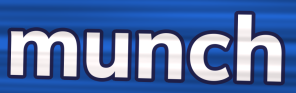
munch